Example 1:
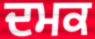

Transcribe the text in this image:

ਦਮਕ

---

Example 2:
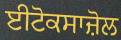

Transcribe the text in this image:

ਈਟੋਕਸਾਜ਼ੋਲ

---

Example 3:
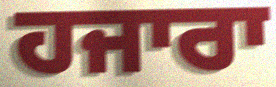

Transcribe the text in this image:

ਹਜਾਰਾ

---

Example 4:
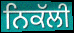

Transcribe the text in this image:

ਨਿਕੱਲੀ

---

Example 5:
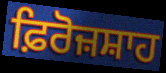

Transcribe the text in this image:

ਫ਼ਿਰੋਜ਼ਸ਼ਾਹ